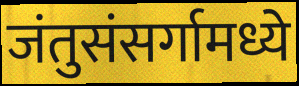
जंतुसंसर्गामध्ये